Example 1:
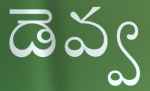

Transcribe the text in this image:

డెవ్వ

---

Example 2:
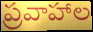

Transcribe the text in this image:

ప్రవాహాల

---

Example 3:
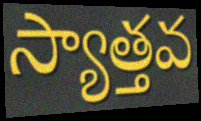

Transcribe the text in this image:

స్యాత్తవ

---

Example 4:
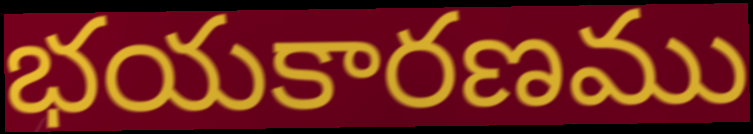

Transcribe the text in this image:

భయకారణము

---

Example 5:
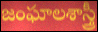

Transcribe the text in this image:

జంఘాలశాస్త్రీ